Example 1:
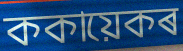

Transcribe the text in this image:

ককায়েকৰ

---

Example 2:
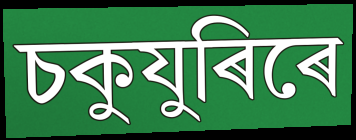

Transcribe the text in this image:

চকুযুৰিৰে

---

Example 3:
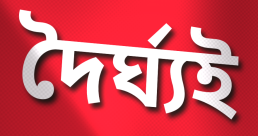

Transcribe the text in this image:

দৈৰ্ঘ্যই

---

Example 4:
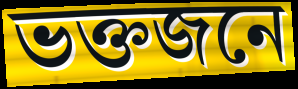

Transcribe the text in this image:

ভক্তজনে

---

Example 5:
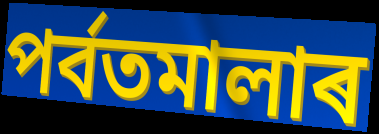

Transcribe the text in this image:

পৰ্বতমালাৰ